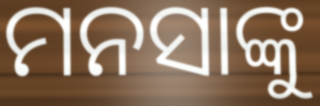
ମନସାଙ୍କୁ